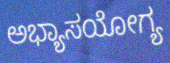
ಅಭ್ಯಾಸಯೋಗ್ಯ